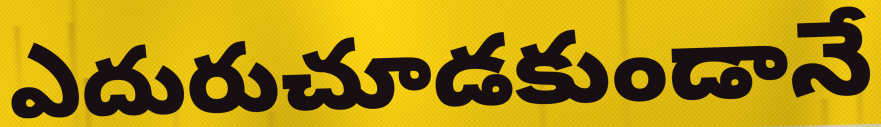
ఎదురుచూడకుండానే